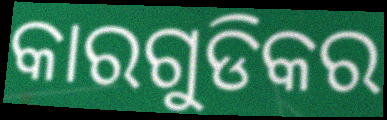
କାରଗୁଡିକର